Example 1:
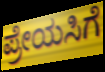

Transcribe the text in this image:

ಪ್ರೇಯಸಿಗೆ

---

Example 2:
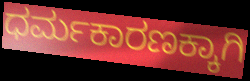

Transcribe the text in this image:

ಧರ್ಮಕಾರಣಕ್ಕಾಗಿ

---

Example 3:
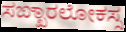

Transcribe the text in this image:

ಸಙ್ಖಾರಲೋಕಸ್ಸ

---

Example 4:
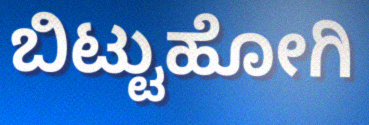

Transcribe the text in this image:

ಬಿಟ್ಟುಹೋಗಿ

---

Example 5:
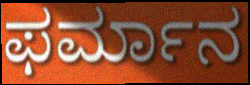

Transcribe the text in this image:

ಫರ್ಮಾನ